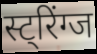
स्ट्रिंग्ज